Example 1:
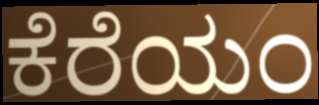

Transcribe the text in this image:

ಕೆರೆಯಂ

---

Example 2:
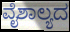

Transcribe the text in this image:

ವೈಶಾಲ್ಯದ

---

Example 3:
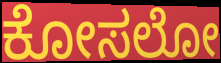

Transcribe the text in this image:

ಕೋಸಲೋ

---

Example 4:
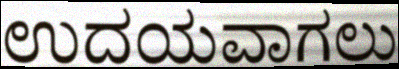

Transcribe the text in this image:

ಉದಯವಾಗಲು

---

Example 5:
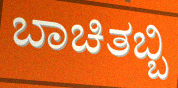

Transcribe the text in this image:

ಬಾಚಿತಬ್ಬಿ